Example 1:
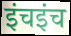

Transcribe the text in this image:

इंचइंच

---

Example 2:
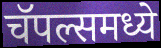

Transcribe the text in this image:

चॅपल्समध्ये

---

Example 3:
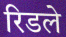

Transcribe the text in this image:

रिडले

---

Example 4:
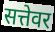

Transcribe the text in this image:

सत्तेवर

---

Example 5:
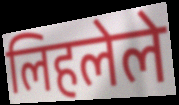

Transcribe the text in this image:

लिहलेले